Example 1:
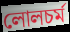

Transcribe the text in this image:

লোলচর্ম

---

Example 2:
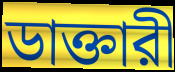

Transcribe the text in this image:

ডাক্তারী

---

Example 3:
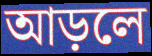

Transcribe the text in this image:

আড়লে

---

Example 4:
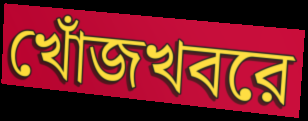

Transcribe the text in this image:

খোঁজখবরে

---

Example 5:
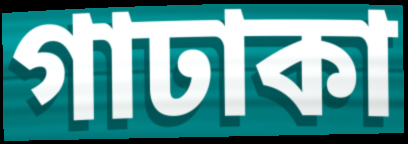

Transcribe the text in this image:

গাঢাকা